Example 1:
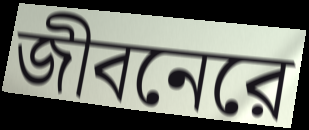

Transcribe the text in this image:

জীবনেরে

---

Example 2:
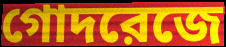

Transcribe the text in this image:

গোদরেজে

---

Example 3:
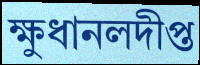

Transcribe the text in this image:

ক্ষুধানলদীপ্ত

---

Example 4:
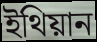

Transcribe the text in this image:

ইথিয়ান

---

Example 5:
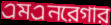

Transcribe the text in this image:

এমএনরেগার